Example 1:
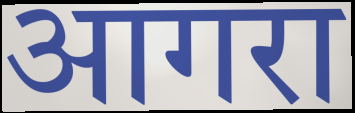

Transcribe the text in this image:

आगरा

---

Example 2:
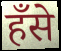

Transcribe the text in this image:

हँसे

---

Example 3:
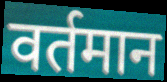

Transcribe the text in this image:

वर्तमान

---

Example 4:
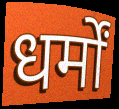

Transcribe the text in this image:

धर्मों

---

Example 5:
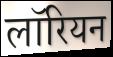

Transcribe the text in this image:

लॉरियन